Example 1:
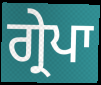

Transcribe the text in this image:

ਗ੍ਰੇਪਾ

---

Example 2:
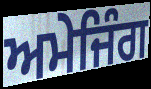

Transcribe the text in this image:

ਅਮੇਜਿੰਗ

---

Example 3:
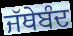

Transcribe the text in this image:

ਜੱਥੇਬੰਦ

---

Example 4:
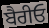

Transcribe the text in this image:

ਬੈਰੀਓ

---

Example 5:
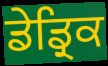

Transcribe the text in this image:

ਡੇਡ੍ਰਿਕ